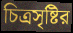
চিত্রসৃষ্টির